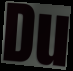
Du